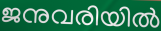
ജനുവരിയിൽ